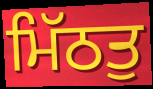
ਮਿੱਠਤੁ